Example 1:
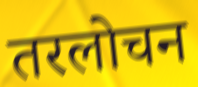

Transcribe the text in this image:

तरलोचन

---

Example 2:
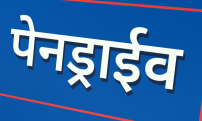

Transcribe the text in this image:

पेनड्राईव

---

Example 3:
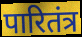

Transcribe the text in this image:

पारितंत्र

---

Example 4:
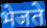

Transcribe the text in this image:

भेजते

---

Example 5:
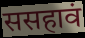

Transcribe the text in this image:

ससहावं